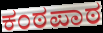
ಕಂಠಪಾಠ